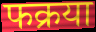
फक्रया